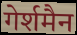
गेर्शमैन